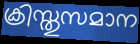
ക്രിസ്തുസമാന